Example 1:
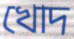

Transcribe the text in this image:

খোদ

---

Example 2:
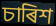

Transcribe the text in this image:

চাৰিশ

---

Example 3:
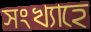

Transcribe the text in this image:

সংখ্যাহে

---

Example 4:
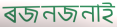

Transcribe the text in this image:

ৰজনজনাই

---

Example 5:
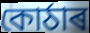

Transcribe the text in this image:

কোঠাৰ